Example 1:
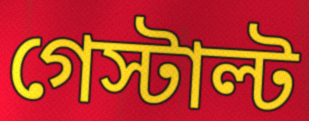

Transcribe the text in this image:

গেস্টাল্ট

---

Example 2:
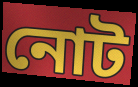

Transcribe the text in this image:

নোট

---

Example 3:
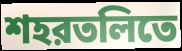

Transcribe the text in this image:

শহরতলিতে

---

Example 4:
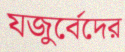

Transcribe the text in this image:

যজুর্বেদের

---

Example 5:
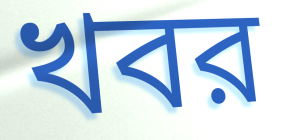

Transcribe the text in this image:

খবর